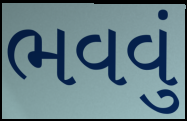
ભવવું